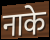
नाके